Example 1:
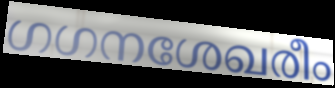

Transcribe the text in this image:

ഗഗനശേഖരീം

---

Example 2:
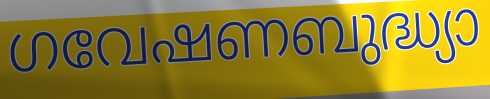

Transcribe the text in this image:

ഗവേഷണബുദ്ധ്യാ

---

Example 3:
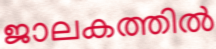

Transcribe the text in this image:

ജാലകത്തിൽ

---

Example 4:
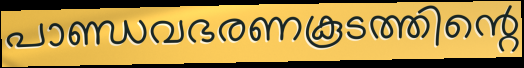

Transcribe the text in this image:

പാണ്ഡവഭരണകൂടത്തിന്റെ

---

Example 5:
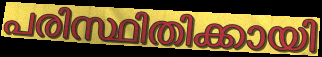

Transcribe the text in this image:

പരിസ്ഥിതിക്കായി